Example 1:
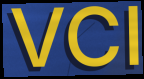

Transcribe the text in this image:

VCI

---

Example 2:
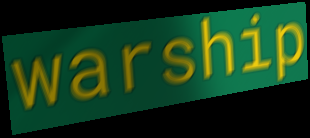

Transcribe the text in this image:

warship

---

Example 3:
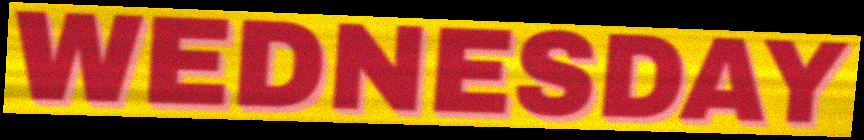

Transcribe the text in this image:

WEDNESDAY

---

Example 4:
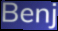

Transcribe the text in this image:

Benj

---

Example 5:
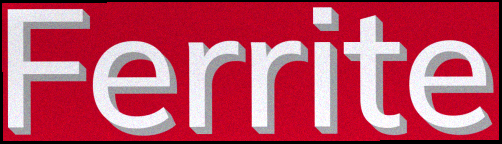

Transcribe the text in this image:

Ferrite